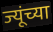
ज्यूंच्या